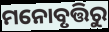
ମନୋବୃତ୍ତିରୁ